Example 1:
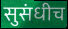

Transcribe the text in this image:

सुसंधीच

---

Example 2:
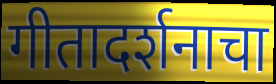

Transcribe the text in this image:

गीतादर्शनाचा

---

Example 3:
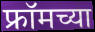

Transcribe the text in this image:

फ्रॉमच्या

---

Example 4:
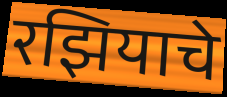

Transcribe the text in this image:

रझियाचे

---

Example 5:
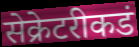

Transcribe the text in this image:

सेक्रेटरीकडं